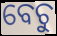
ବେଚୁ